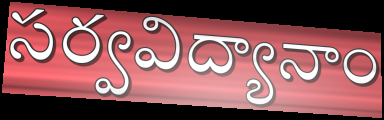
సర్వవిద్యానాం